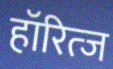
हॉरित्ज